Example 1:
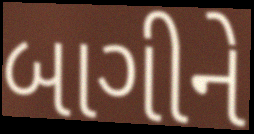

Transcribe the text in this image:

બાગીને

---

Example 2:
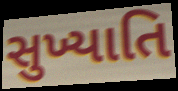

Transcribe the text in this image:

સુખ્યાતિ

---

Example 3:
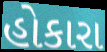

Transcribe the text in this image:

હોકારા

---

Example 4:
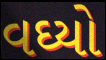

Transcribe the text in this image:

વઘ્યો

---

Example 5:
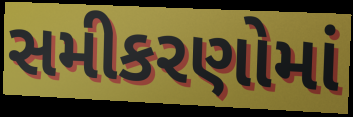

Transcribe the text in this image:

સમીકરણોમાં